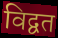
विद्वत